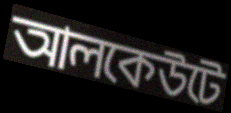
আলকেউটে